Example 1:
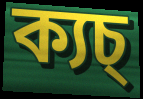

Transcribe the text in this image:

ক্যচ্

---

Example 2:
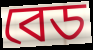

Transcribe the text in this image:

বেড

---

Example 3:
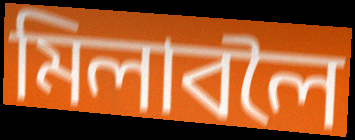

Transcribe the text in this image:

মিলাবলৈ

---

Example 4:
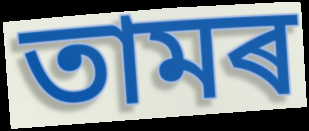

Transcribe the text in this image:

তামৰ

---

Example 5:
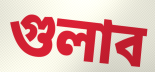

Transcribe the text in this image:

গুলাব